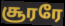
சூரரே